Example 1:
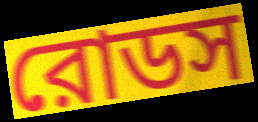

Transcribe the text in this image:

রোডস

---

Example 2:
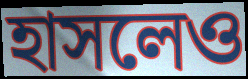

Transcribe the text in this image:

হাসলেও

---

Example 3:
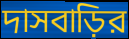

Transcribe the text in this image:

দাসবাড়ির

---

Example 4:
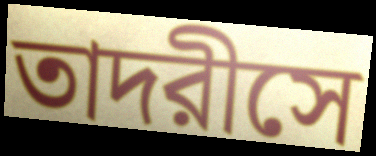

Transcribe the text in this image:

তাদরীসে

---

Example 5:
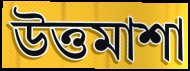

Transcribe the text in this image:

উত্তমাশা